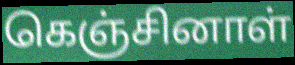
கெஞ்சினாள்